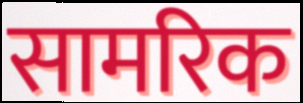
सामरिक